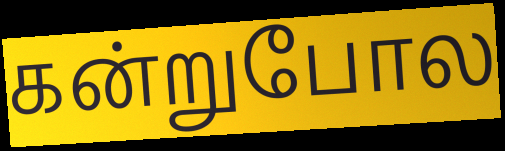
கன்றுபோல